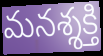
మనశ్శక్తి